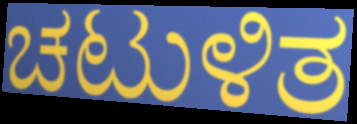
ಚಟುಳಿತ